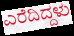
ಎರೆದಿದ್ದಳು